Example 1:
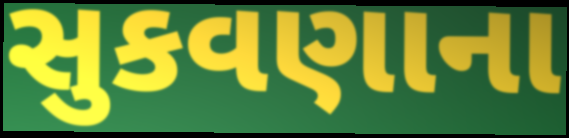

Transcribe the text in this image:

સુકવણાના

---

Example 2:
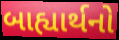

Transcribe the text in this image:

બાહ્યાર્થનો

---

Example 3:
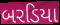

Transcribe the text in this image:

બરડિયા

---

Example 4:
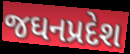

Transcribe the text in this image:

જઘનપ્રદેશ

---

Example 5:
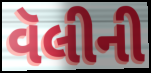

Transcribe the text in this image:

વૅલીની